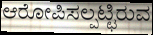
ಆರೋಪಿಸಲ್ಪಟ್ಟಿರುವ